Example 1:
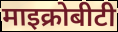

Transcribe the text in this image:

माइक्रोबीटी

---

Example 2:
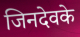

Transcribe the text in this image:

जिनदेवके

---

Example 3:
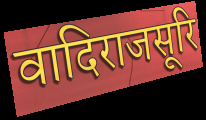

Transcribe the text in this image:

वादिराजसूरि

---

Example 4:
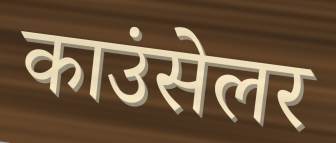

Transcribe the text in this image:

काउंसेलर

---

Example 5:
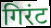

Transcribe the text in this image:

गिरंट